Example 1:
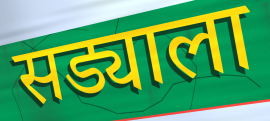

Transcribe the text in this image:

सड्याला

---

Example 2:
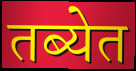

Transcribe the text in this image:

तब्येत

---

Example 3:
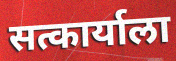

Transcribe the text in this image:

सत्कार्याला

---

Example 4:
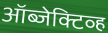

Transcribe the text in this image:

ऑब्जेक्टिव्ह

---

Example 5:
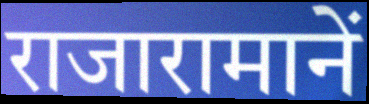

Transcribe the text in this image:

राजारामानें